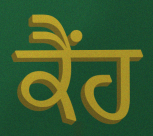
ਕੈਂਹ